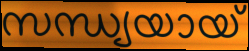
സന്ധ്യയായ്